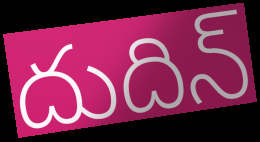
దుదిన్